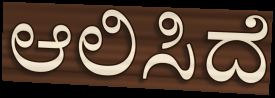
ಆಲಿಸಿದೆ